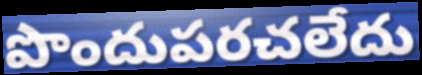
పొందుపరచలేదు